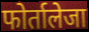
फोर्तालेजा